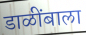
डाळींबाला